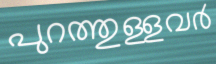
പുറത്തുള്ളവർ